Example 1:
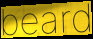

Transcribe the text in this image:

beard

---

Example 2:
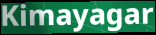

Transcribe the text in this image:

Kimayagar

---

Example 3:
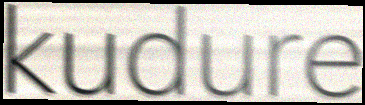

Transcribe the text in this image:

kudure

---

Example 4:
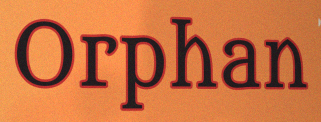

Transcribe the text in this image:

Orphan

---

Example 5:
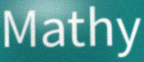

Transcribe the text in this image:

Mathy